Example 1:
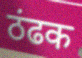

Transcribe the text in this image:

ठंढक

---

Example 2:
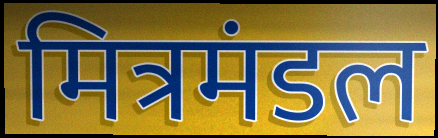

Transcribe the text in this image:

मित्रमंडल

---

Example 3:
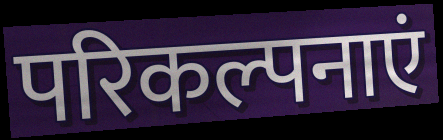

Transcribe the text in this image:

परिकल्पनाएं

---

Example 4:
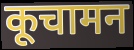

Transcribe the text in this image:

कूचामन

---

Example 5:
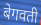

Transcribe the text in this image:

बेगवती